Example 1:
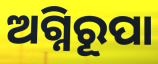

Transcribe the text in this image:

ଅଗ୍ନିରୂପା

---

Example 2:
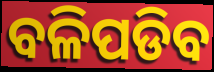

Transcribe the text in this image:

ବଳିପଡିବ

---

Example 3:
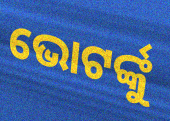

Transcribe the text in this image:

ଭୋଟର୍ଙ୍କୁ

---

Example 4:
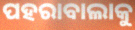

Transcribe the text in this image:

ପହରାବାଲାକୁ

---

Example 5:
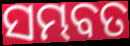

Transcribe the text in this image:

ସମ୍ଭବତ